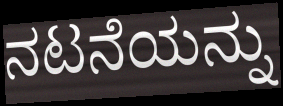
ನಟನೆಯನ್ನು